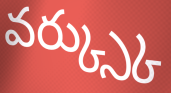
వర్క్స్కు